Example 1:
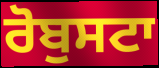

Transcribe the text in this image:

ਰੋਬੁਸਟਾ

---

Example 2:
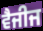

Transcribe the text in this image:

ਵੈਜੀਜ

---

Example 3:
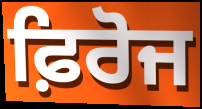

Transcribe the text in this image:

ਫ਼ਿਰੋਜ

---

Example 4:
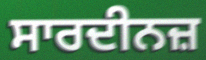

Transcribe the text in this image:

ਸਾਰਦੀਨਜ਼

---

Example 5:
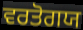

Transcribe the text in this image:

ਵਰਤੋਗਯ